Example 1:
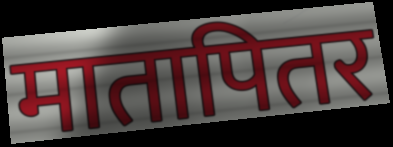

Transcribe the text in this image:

मातापितर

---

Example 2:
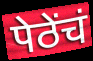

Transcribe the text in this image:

पेठेंचं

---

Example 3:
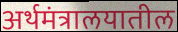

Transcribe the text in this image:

अर्थमंत्रालयातील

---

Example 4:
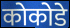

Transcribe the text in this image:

कोकोडे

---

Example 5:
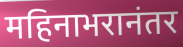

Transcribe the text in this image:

महिनाभरानंतर